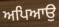
ਅਪਿਆਉ